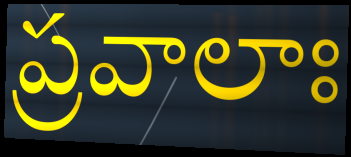
ప్రవాలాః